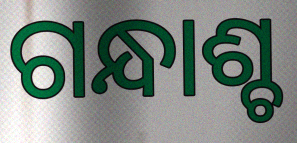
ଗନ୍ଧାଶ୍ଚ